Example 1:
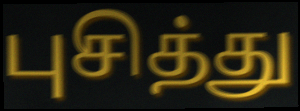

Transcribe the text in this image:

புசித்து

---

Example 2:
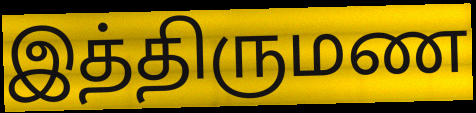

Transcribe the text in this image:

இத்திருமண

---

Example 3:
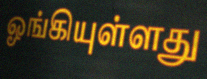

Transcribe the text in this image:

ஓங்கியுள்ளது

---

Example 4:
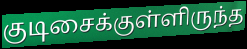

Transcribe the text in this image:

குடிசைக்குள்ளிருந்த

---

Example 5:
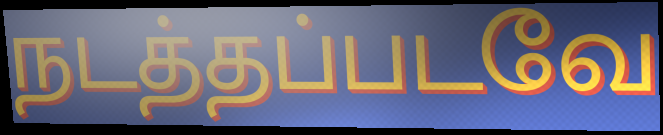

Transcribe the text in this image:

நடத்தப்படவே